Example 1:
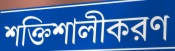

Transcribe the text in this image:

শক্তিশালীকরণ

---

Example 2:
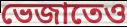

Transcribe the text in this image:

ভেজাতেও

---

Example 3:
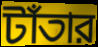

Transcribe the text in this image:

টাঁতার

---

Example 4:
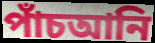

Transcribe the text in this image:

পাঁচআনি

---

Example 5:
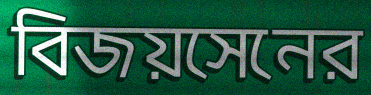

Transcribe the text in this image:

বিজয়সেনের